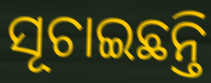
ସୂଚାଇଛନ୍ତି